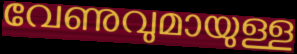
വേണുവുമായുള്ള